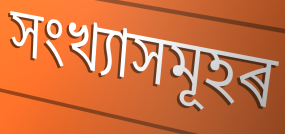
সংখ্যাসমূহৰ